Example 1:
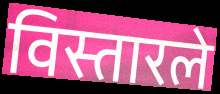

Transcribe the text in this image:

विस्तारले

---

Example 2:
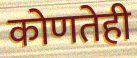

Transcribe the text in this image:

कोणतेही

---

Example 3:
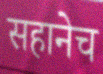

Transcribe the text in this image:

सहानेच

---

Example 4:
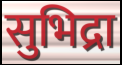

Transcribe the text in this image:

सुभिद्रा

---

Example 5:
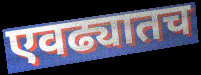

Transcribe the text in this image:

एवढ्यातच